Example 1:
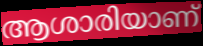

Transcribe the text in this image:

ആശാരിയാണ്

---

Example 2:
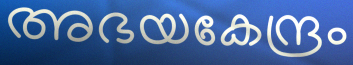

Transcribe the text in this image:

അഭയകേന്ദ്രം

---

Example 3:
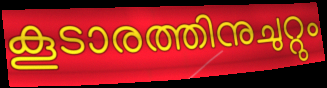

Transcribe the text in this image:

കൂടാരത്തിനുചുറ്റും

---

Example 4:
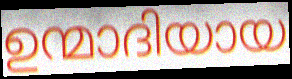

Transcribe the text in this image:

ഉന്മാദിയായ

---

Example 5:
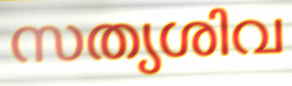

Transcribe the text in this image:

സത്യശിവ